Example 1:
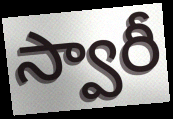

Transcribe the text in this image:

స్వారీ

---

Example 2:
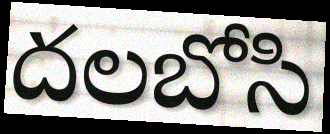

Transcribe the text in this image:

దలబోసి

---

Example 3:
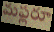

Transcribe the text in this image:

మఫ్లరూ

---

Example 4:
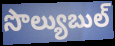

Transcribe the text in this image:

సొల్యుబుల్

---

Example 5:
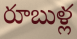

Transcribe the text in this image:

రూబుళ్ల